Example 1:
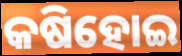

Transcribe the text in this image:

କଷିହୋଇ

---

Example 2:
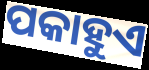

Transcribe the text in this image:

ପକାହୁଏ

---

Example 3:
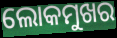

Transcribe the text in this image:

ଲୋକମୁଖର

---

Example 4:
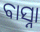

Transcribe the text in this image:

ବାସ୍ନା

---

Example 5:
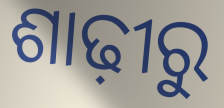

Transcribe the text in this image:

ଶାଢ଼ୀରୁ